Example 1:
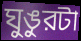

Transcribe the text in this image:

ঘুঙুরটা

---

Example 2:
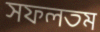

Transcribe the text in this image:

সফলতম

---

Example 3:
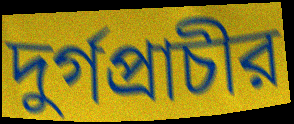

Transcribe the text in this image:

দুর্গপ্রাচীর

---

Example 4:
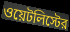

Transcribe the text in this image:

ওয়েটলিস্টের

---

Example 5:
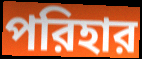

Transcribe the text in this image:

পরিহার